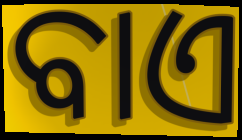
ବାଏ